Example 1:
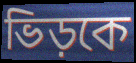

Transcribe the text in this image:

ভিড়কে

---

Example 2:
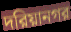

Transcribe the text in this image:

দরিয়ানগর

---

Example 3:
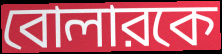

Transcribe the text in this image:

বোলারকে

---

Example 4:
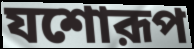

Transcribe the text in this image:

যশোরূপ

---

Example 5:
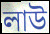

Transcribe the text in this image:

লাউ